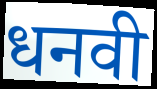
धनवी